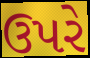
ઉપરે